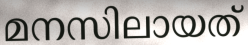
മനസിലായത്